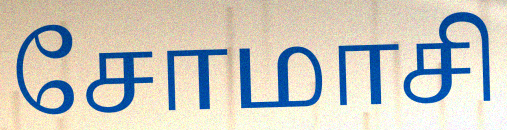
சோமாசி